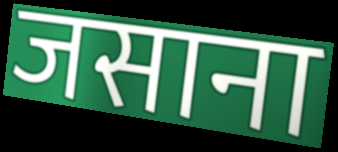
जसाना